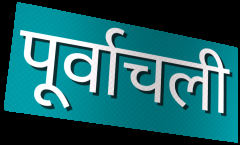
पूर्वाचली